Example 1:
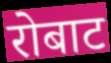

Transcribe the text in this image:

रोबाट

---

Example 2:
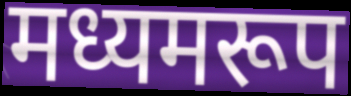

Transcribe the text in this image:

मध्यमरूप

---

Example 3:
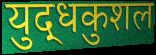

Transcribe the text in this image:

युद्धकुशल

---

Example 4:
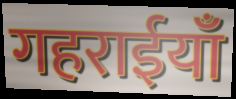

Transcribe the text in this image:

गहराईयाँ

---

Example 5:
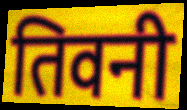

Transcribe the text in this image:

तिवनी